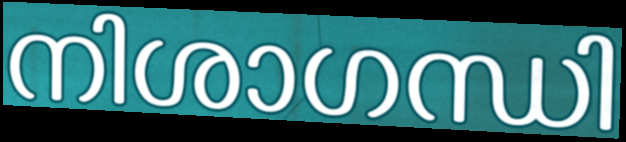
നിശാഗന്ധി